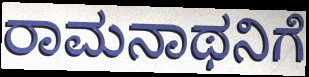
ರಾಮನಾಥನಿಗೆ